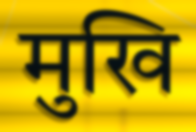
मुखि